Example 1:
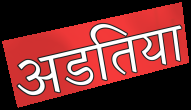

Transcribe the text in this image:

अडतिया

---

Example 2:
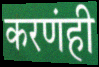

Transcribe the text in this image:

करणंही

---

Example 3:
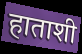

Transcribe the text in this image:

हाताशी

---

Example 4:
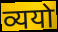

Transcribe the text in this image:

व्ययो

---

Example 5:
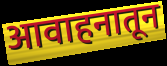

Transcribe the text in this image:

आवाहनातून